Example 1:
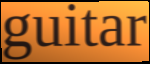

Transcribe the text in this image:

guitar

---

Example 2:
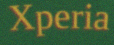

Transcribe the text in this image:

Xperia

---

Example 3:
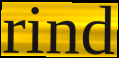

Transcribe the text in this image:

rind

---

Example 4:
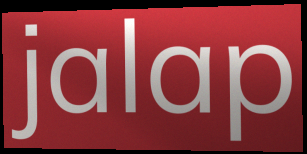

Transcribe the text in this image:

jalap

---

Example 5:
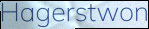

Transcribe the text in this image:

Hagerstwon